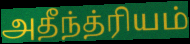
அதீந்த்ரியம்